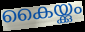
കൈയ്ക്കും